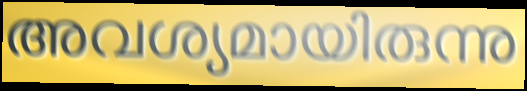
അവശ്യമായിരുന്നു